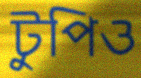
টুপিও